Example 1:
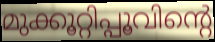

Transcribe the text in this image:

മുക്കൂറ്റിപ്പൂവിന്റെ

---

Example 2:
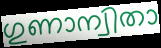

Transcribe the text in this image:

ഗുണാന്വിതാ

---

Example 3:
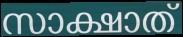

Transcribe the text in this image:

സാക്ഷാത്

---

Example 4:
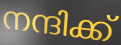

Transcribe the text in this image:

നന്ദിക്ക്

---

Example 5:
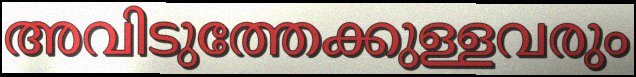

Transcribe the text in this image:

അവിടുത്തേക്കുള്ളവരും